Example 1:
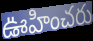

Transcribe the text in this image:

ఊహించరు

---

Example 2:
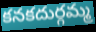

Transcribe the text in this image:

కనకదుర్గమ్మ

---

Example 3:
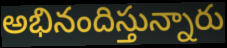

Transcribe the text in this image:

అభినందిస్తున్నారు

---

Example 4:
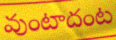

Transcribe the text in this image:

వుంటాదంట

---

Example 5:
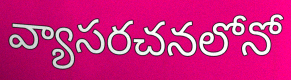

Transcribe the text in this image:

వ్యాసరచనలోనో